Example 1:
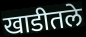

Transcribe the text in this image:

खाडीतले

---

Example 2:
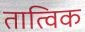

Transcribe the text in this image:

तात्विक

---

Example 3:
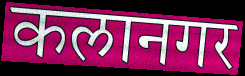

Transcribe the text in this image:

कलानगर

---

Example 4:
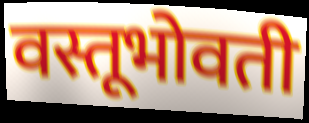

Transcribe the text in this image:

वस्तूभोवती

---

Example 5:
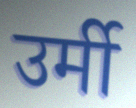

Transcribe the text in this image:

उर्मी